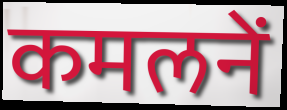
कमलनें